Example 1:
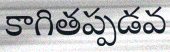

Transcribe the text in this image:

కాగితప్పడవ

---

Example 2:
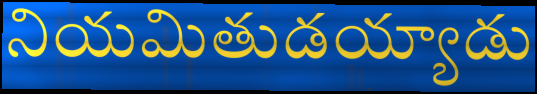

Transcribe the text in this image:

నియమితుడయ్యాడు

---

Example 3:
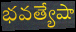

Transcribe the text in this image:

భవత్యేషా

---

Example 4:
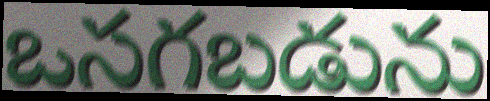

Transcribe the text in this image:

ఒసగబడును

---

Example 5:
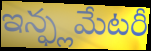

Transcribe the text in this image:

ఇన్ఫ్లమేటరీ